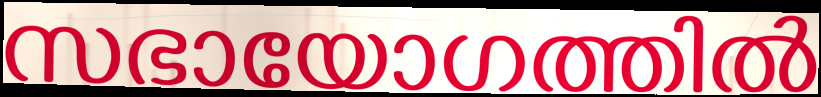
സഭായോഗത്തിൽ